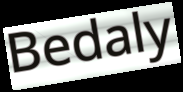
Bedaly